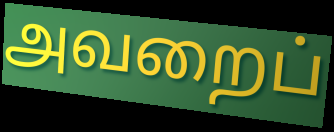
அவறைப்